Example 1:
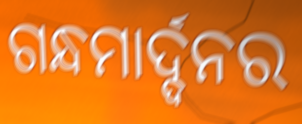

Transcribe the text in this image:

ଗନ୍ଧମାର୍ଦ୍ଦନର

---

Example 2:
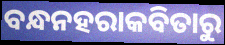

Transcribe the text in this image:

ବନ୍ଧନହରାକବିତାରୁ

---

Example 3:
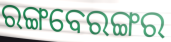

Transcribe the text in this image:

ରଙ୍ଗବେରଙ୍ଗର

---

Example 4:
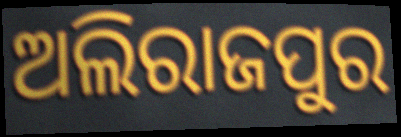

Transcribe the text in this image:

ଅଲିରାଜପୁର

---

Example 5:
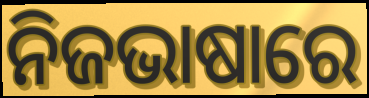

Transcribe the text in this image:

ନିଜଭାଷାରେ